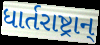
ધાર્તરાષ્ટ્રાન્